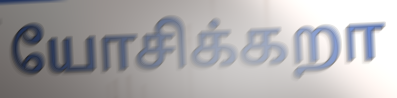
யோசிக்கறா